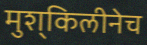
मुश्किलीनेच